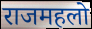
राजमहलो